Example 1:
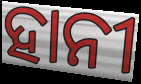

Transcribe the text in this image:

ହାନୀ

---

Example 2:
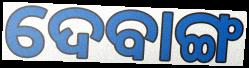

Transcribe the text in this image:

ଦେବାଙ୍ଗ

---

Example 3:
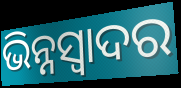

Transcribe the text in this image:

ଭିନ୍ନସ୍ବାଦର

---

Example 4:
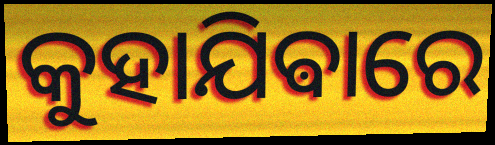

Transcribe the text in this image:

କୁହାଯିଵାରେ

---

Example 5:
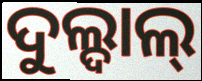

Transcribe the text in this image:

ଦୁଲ୍ଦାଲ୍